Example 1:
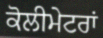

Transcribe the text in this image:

ਕੋਲੀਮੇਟਰਾਂ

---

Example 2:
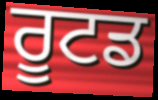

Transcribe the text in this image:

ਰੂਟਡ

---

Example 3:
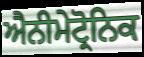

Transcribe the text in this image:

ਐਨੀਮੇਟ੍ਰੋਨਿਕ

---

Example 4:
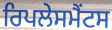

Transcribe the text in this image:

ਰਿਪਲੇਸਮੈਂਟਸ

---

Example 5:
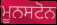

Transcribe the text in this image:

ਮੂਨਸਟੋਨ